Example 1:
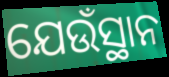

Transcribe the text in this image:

ଯେଉଁସ୍ଥାନ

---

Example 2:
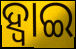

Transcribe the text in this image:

ହ୍ଵାଇ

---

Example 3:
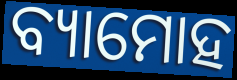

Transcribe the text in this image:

ବ୍ୟାମୋହ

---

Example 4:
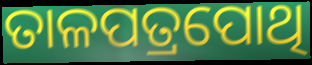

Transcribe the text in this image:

ତାଳପତ୍ରପୋଥି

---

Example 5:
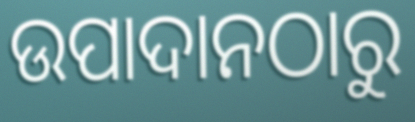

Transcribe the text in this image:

ଉପାଦାନଠାରୁ